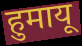
हुमायू